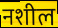
नशील